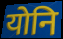
योनि